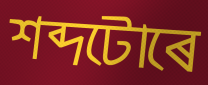
শব্দটোৰে